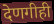
देणगीही